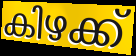
കിഴക്ക്